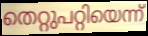
തെറ്റുപറ്റിയെന്ന്